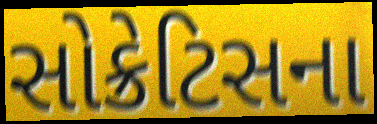
સોક્રેટિસના